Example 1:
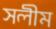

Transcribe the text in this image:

সলীম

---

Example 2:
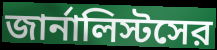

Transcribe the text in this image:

জার্নালিস্টসের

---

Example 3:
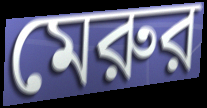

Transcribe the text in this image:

মেরুর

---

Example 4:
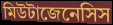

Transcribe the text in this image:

মিউটাজেনেসিস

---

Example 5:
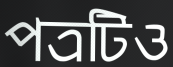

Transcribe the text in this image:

পত্রটিও